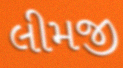
લીમજી